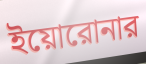
ইয়োরোনার